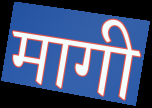
मागी